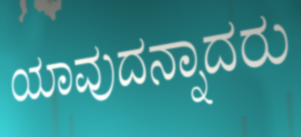
ಯಾವುದನ್ನಾದರು